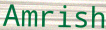
Amrish